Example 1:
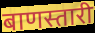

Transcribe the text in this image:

बाणस्तारी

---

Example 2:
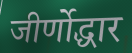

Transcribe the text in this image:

जीर्णोद्धार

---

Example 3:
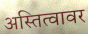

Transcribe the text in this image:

अस्तित्वावर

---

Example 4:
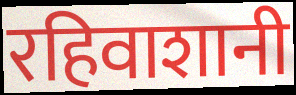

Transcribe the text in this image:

रहिवाशानी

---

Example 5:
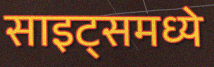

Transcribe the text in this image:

साइट्समध्ये